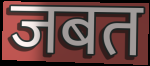
जबत